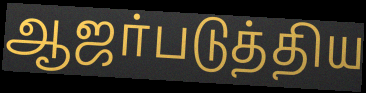
ஆஜர்படுத்திய